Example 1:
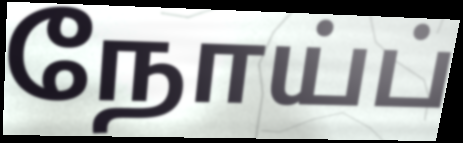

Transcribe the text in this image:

நோய்ப்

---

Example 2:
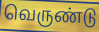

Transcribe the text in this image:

வெருண்டு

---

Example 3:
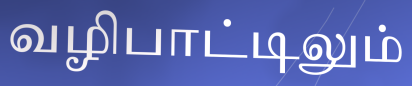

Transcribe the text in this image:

வழிபாட்டிலும்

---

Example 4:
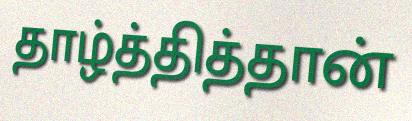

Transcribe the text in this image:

தாழ்த்தித்தான்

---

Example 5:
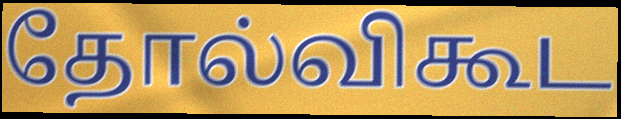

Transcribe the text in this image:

தோல்விகூட